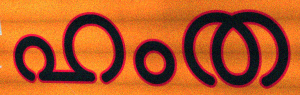
ഹംത